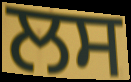
ਲਸ